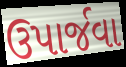
ઉપાર્જવા